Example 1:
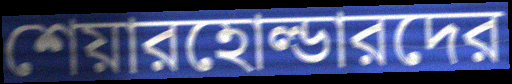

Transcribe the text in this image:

শেয়ারহোল্ডারদের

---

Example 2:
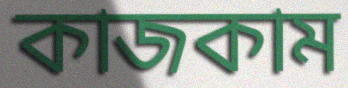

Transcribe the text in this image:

কাজকাম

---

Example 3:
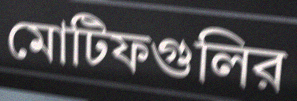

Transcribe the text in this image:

মোটিফগুলির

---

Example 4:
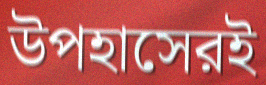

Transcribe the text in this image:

উপহাসেরই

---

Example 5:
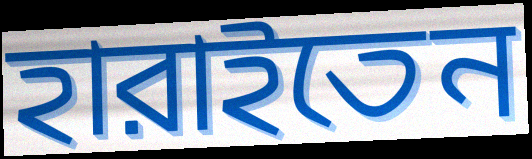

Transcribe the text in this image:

হারাইতেন